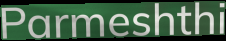
Parmeshthi